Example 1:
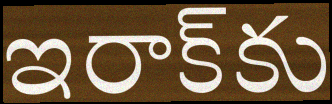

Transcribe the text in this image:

ఇరాక్‌కు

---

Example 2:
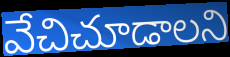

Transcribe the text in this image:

వేచిచూడాలని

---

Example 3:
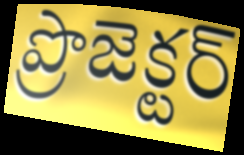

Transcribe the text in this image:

ప్రొజెక్టర్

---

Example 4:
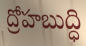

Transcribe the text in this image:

ద్రోహబుద్ధి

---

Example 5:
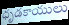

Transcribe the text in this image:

ధృడకాయులు